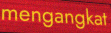
mengangkat